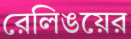
রেলিঙয়ের